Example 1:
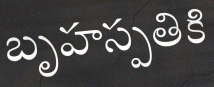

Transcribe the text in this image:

బృహస్పతికి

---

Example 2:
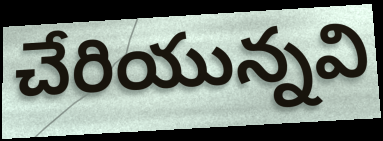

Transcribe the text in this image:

చేరియున్నవి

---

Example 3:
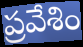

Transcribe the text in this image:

ప్రవేశిం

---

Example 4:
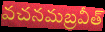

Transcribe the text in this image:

వచనమబ్రవీత్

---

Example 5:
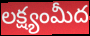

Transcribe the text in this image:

లక్ష్యంమీద